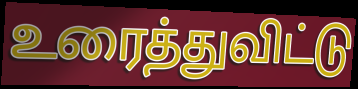
உரைத்துவிட்டு